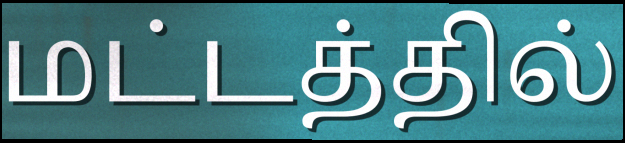
மட்டத்தில்